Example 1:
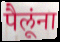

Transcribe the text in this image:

पैलूंना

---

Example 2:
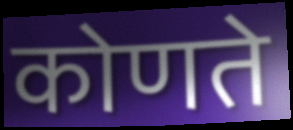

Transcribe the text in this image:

कोणते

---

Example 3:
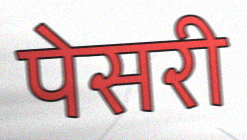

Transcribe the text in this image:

पेसरी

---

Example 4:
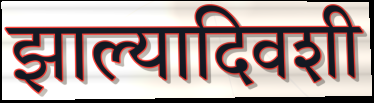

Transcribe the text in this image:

झाल्यादिवशी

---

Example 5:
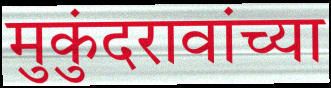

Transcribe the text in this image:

मुकुंदरावांच्या